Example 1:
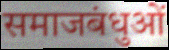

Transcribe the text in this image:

समाजबंधुओं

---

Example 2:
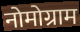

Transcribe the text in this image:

नोमोग्राम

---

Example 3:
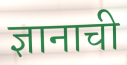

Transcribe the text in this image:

ज्ञानाची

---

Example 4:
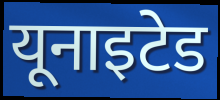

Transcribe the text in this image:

यूनाइटेड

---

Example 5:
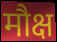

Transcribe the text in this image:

मौक्ष